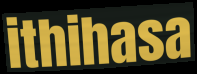
ithihasa